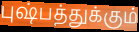
புஷ்பத்துக்கும்